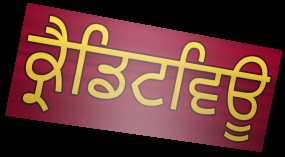
ਕ੍ਰੈਡਿਟਵਿਊ